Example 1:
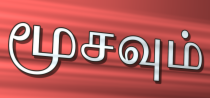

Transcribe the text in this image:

மூசவும்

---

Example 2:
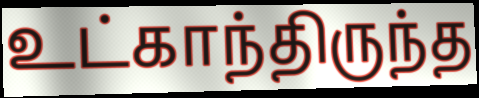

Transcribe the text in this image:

உட்காந்திருந்த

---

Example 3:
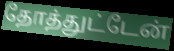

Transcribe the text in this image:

தோத்துட்டேன்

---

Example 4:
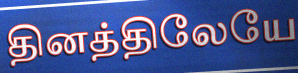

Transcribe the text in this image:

தினத்திலேயே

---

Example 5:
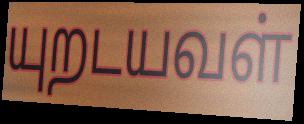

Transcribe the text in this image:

யுறடயவள்